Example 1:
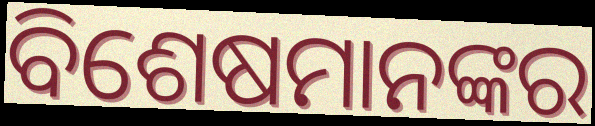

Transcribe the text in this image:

ବିଶେଷମାନଙ୍କର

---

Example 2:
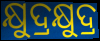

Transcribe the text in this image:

କ୍ଷୁଦ୍ରକ୍ଷୁଦ୍ର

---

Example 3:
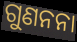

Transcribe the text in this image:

ଗୁଣନନା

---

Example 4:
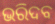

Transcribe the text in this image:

ଭରିଦବ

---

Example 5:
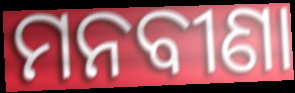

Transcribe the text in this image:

ମନବୀଣା